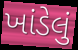
ખાંડેલું